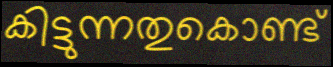
കിട്ടുന്നതുകൊണ്ട്